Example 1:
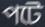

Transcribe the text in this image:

পটে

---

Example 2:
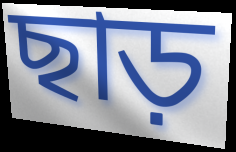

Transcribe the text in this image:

ছাড়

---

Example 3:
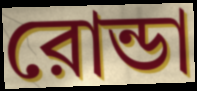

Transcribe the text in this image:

রোন্ডা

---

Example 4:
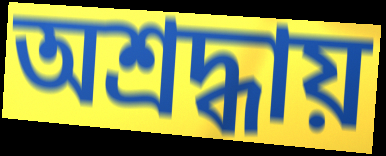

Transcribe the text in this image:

অশ্রদ্ধায়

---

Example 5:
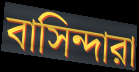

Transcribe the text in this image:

বাসিন্দারা